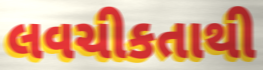
લવચીકતાથી